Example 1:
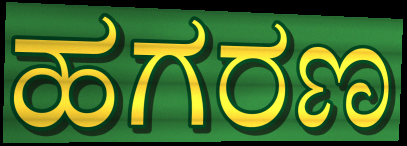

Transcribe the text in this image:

ಹಗರಣ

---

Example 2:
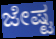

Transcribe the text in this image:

ಜೇಷ್ಟ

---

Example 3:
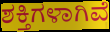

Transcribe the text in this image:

ಶಕ್ತಿಗಳಾಗಿವೆ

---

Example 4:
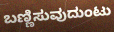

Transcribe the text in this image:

ಬಣ್ಣಿಸುವುದುಂಟು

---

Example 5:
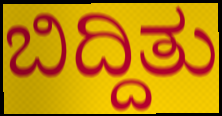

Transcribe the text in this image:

ಬಿದ್ದಿತು